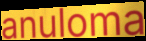
anuloma